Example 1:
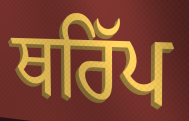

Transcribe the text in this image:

ਥਰਿੱਪ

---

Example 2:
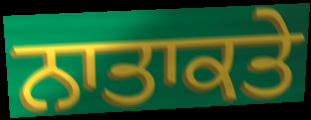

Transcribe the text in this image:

ਨਾਤਾਕਤੇ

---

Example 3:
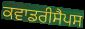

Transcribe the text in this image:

ਕਵਾਡਰੀਸੈਪਸ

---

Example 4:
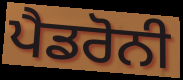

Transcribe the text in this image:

ਪੈਡਰੋਨੀ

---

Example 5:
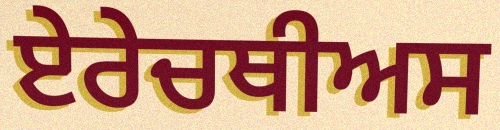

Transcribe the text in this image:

ਏਰੇਚਥੀਅਸ